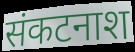
संकटनाश